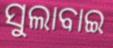
ସୁଲାବାଇ